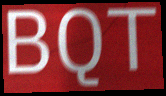
BQT